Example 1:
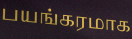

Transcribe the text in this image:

பயங்கரமாக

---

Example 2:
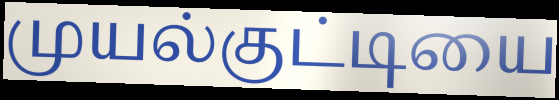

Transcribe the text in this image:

முயல்குட்டியை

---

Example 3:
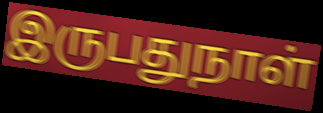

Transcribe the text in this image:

இருபதுநாள்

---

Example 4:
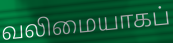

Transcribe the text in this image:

வலிமையாகப்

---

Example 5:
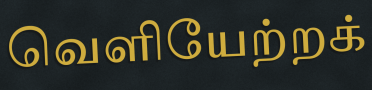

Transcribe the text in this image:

வெளியேற்றக்